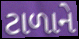
ટાળાને